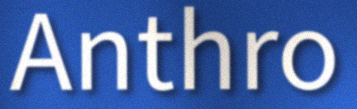
Anthro